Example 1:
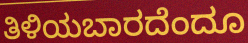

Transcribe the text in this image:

ತಿಳಿಯಬಾರದೆಂದೂ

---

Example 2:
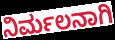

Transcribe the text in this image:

ನಿರ್ಮಲನಾಗಿ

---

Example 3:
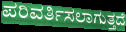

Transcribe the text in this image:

ಪರಿವರ್ತಿಸಲಾಗುತ್ತದೆ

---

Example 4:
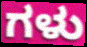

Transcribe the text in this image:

ಗಳು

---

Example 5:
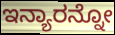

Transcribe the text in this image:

ಇನ್ಯಾರನ್ನೋ